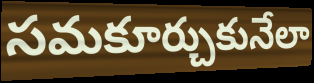
సమకూర్చుకునేలా